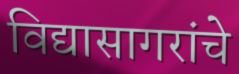
विद्यासागरांचे